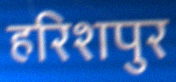
हरिशपुर